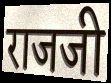
राजजी